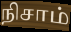
நிசாம்